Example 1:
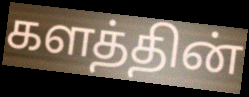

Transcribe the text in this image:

களத்தின்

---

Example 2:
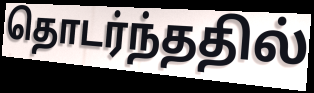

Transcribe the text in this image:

தொடர்ந்ததில்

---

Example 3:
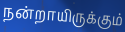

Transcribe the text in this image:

நன்றாயிருக்கும்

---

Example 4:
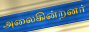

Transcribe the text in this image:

அலைகின்றனர்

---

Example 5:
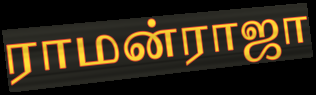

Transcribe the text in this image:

ராமன்ராஜா